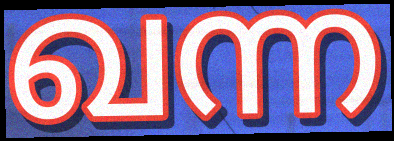
ഖന്ന